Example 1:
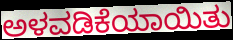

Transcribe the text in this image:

ಅಳವಡಿಕೆಯಾಯಿತು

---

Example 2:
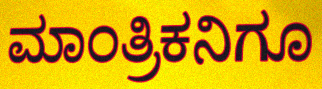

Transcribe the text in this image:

ಮಾಂತ್ರಿಕನಿಗೂ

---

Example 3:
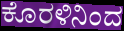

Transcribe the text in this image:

ಕೊರಳಿನಿಂದ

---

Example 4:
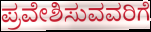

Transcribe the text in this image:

ಪ್ರವೇಶಿಸುವವರಿಗೆ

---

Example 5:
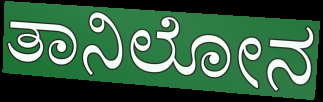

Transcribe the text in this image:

ತಾನಿಲೋನ